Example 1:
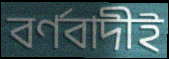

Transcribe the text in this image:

বর্ণবাদীই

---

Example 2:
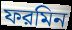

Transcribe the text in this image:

ফরমিন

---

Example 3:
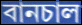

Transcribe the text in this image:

বানচাল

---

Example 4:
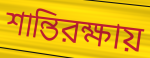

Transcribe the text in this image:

শান্তিরক্ষায়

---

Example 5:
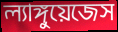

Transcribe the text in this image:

ল্যাঙ্গুয়েজেস